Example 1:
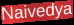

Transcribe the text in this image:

Naivedya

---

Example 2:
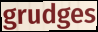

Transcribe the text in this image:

grudges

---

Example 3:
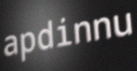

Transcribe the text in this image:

apdinnu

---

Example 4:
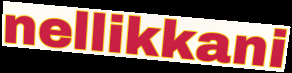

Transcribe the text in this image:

nellikkani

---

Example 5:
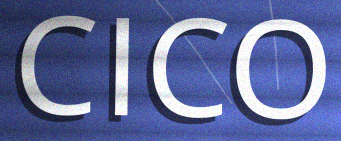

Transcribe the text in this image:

CICO